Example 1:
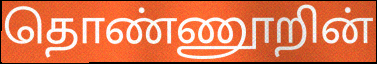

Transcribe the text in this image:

தொண்ணூறின்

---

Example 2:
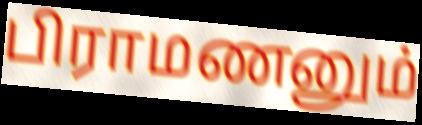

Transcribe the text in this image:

பிராமணனும்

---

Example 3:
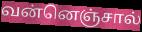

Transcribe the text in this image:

வன்னெஞ்சால்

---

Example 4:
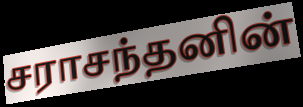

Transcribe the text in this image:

சராசந்தனின்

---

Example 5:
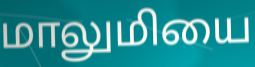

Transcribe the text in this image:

மாலுமியை